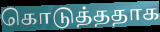
கொடுத்ததாக